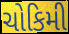
ચોકિમી